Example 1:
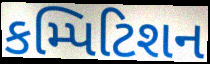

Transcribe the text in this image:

કમ્પિટિશન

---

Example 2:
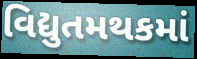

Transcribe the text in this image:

વિદ્યુતમથકમાં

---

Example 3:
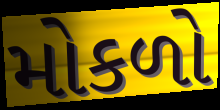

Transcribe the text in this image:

મોકળો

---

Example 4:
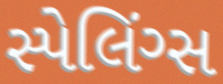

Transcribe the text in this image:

સ્પેલિંગ્સ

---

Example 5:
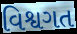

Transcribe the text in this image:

વિશ્વગત